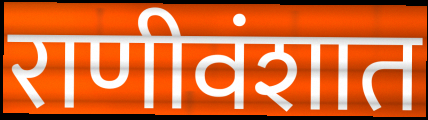
राणीवंशात